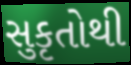
સુકૃતોથી